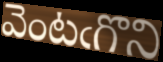
వెంటఁగొని